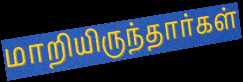
மாறியிருந்தார்கள்